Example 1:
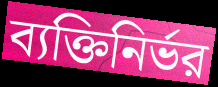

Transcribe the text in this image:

ব্যক্তিনির্ভর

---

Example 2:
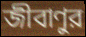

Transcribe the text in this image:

জীবাণুর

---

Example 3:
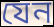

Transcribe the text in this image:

যেন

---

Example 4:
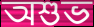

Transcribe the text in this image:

অশুভ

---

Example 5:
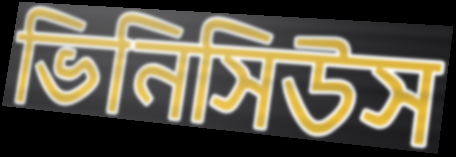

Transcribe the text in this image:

ভিনিসিউস